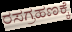
ರಸಗ್ರಹಣಕ್ಕೆ